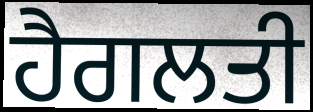
ਹੈਗਲਤੀ